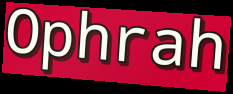
Ophrah